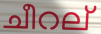
ചീറല്